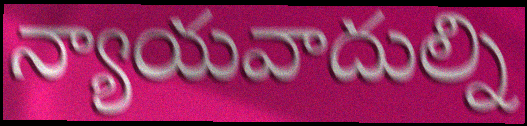
న్యాయవాదుల్ని